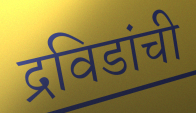
द्रविडांची